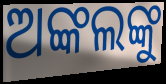
ଅଙ୍କଲଙ୍କୁ